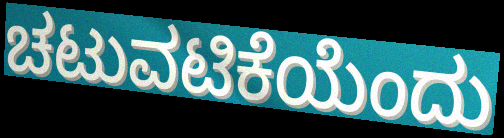
ಚಟುವಟಿಕೆಯೆಂದು